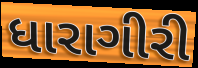
ધારાગીરી